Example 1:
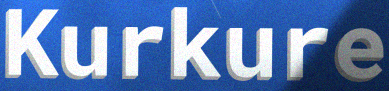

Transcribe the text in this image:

Kurkure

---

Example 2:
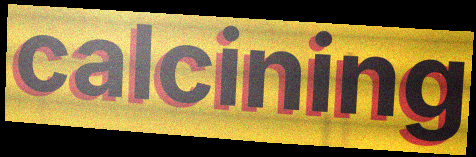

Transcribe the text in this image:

calcining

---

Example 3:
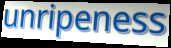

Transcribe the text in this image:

unripeness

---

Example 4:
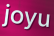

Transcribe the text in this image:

joyu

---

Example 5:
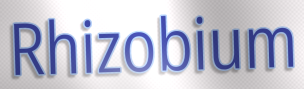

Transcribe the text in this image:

Rhizobium